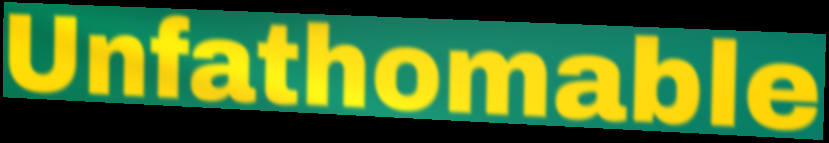
Unfathomable